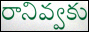
రానివ్వకు